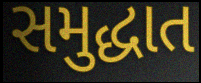
સમુદ્ધાત